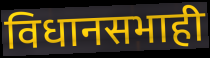
विधानसभाही